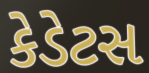
કેડેટસ